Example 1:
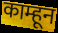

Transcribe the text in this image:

काम्हून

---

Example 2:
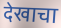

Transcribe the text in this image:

देखाचा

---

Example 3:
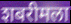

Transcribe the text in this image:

शबरीमला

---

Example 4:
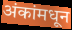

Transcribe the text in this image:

अंकांमधून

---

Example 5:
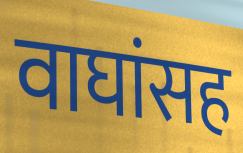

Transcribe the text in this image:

वाघांसह